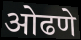
ओढणे